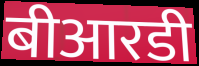
बीआरडी